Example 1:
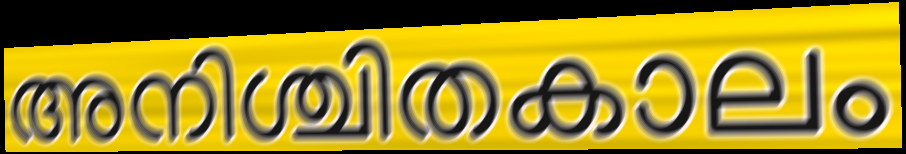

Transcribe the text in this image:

അനിശ്ചിതകാലം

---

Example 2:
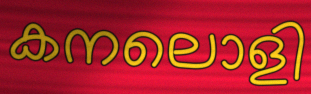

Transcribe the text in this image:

കനലൊളി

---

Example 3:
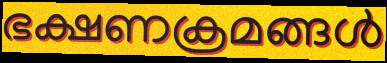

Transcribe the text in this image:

ഭക്ഷണക്രമങ്ങൾ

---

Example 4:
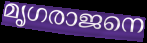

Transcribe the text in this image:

മൃഗരാജനെ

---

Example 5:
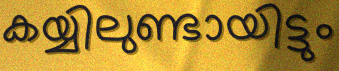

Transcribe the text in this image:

കയ്യിലുണ്ടായിട്ടും